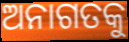
ଅନାଗତକୁ